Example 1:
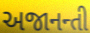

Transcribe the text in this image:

અજાનન્તી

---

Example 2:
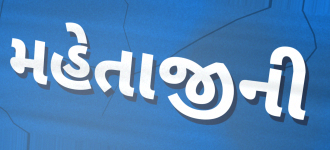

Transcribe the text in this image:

મહેતાજીની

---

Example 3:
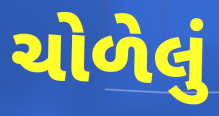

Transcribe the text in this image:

ચોળેલું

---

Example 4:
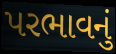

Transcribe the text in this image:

પરભાવનું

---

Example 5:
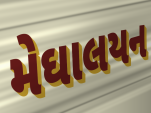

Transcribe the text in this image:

મેઘાલયન